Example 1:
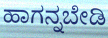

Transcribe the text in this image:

ಹಾಗನ್ನಬೇಡಿ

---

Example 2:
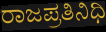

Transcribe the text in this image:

ರಾಜಪ್ರತಿನಿಧಿ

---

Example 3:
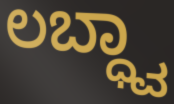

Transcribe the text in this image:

ಲಬ್ಧ್ವಾ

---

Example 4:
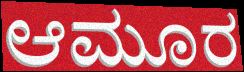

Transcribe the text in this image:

ಆಮೂರ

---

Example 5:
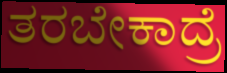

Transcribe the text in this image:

ತರಬೇಕಾದ್ರೆ